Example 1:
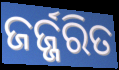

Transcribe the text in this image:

ଜର୍ଜ୍ଜରିତ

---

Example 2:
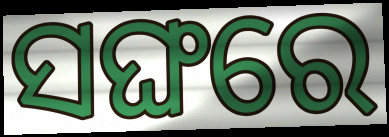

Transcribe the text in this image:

ସଙ୍ଘରେ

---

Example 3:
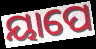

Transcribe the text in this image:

ୟାପେ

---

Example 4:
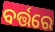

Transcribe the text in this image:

ବର୍ତ୍ତରେ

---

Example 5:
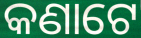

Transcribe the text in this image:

କଣାଟେ